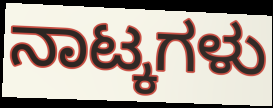
ನಾಟ್ಕಗಳು